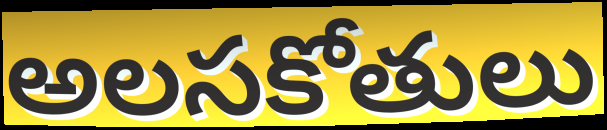
అలసకోతులు